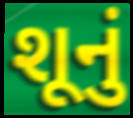
શૂનું